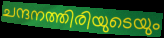
ചന്ദനത്തിരിയുടെയും